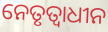
ନେତୃତ୍ୱାଧୀନ